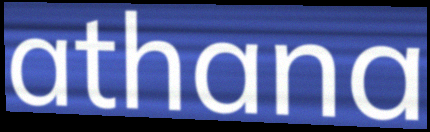
athana